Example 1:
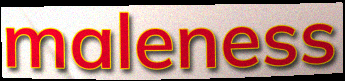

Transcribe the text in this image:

maleness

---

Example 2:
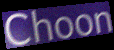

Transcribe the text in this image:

Choon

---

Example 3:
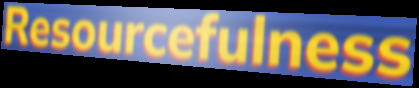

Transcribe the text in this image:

Resourcefulness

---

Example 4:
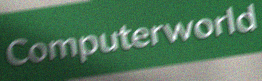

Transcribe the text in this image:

Computerworld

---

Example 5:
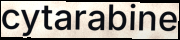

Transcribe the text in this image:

cytarabine